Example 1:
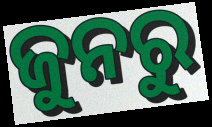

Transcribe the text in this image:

ଜୁନରୁ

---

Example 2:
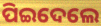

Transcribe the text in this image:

ପିଇଦେଲେ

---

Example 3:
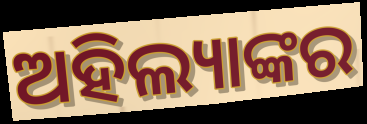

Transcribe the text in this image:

ଅହିଲ୍ୟାଙ୍କର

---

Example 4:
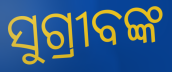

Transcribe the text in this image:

ସୁଗ୍ରୀବଙ୍କ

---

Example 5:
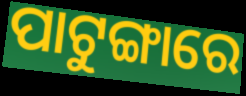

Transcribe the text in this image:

ପାଟୁଙ୍ଗାରେ